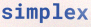
simplex